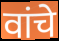
वांचे